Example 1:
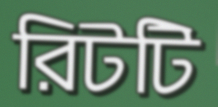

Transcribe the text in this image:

রিটটি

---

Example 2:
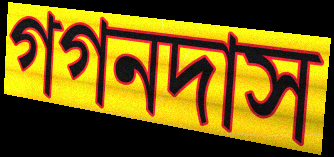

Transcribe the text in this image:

গগনদাস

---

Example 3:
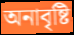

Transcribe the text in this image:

অনাবৃষ্টি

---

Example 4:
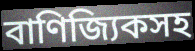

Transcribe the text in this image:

বাণিজ্যিকসহ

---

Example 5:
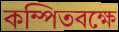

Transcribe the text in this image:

কম্পিতবক্ষে